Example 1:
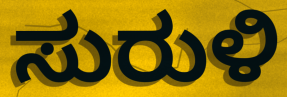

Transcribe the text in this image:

ಸುರುಳಿ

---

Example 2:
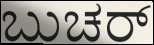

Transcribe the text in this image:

ಬುಚರ್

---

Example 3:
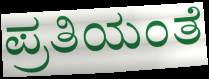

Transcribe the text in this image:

ಪ್ರತಿಯಂತೆ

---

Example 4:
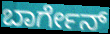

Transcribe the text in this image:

ಬಾರ್ಗೇನ್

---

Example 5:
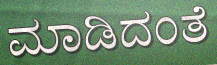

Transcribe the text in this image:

ಮಾಡಿದಂತೆ